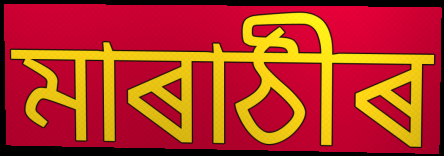
মাৰাঠীৰ